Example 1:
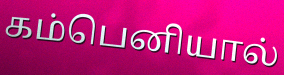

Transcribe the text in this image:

கம்பெனியால்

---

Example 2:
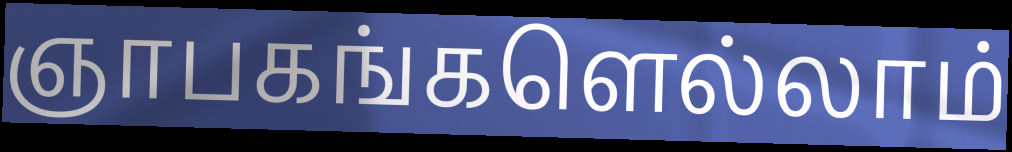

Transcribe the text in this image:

ஞாபகங்களெல்லாம்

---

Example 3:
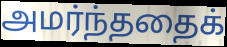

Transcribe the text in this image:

அமர்ந்ததைக்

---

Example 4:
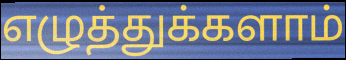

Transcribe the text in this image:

எழுத்துக்களாம்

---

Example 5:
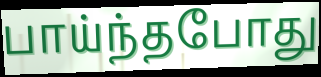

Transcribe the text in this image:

பாய்ந்தபோது